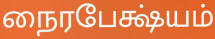
நைரபேக்ஷ்யம்